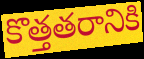
కొత్తతరానికి